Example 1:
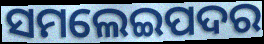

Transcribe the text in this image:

ସମଲେଇପଦର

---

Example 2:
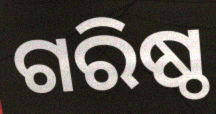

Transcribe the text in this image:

ଗରିଷ୍ଠ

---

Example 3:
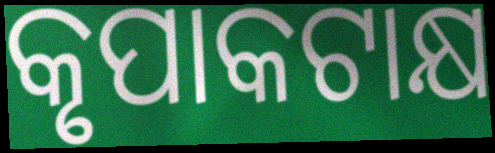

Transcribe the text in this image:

କୃପାକଟାକ୍ଷ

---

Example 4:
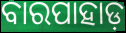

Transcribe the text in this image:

ବାରପାହାଡ଼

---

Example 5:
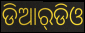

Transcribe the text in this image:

ଡିଆର୍‌ଡିଓ